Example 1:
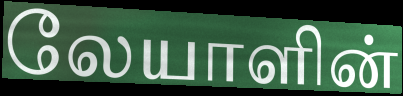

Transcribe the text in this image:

லேயாளின்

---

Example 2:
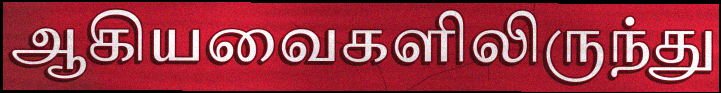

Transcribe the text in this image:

ஆகியவைகளிலிருந்து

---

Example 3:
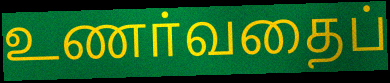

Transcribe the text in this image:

உணர்வதைப்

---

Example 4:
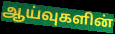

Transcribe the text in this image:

ஆய்வுகளின்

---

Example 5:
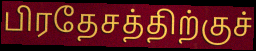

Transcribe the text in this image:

பிரதேசத்திற்குச்